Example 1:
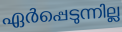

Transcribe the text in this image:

ഏർപ്പെടുന്നില്ല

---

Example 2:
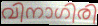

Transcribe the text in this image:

വിനാഗിരി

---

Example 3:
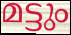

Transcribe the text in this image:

മട്ടും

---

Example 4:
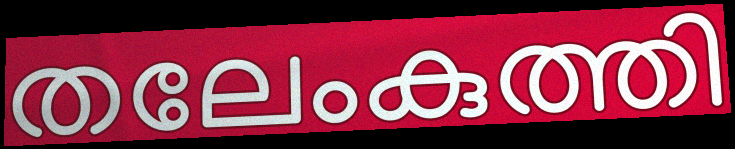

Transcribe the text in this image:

തലേംകുത്തി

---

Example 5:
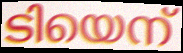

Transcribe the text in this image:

ടിയെന്